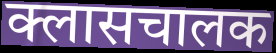
क्‍लासचालक